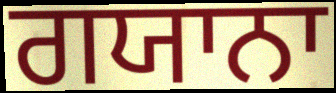
ਗਯਾਨਾ